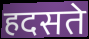
हदसते